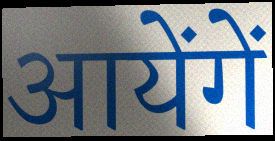
आयेंगें